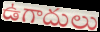
ఉగాదులు